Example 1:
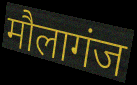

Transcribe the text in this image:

मौलागंज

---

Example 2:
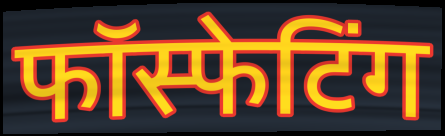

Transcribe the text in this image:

फॉस्फेटिंग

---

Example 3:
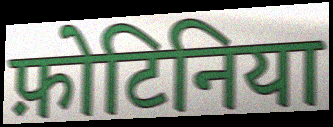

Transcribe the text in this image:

फ़ोटिनिया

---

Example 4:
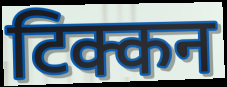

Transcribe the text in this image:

टिक्कन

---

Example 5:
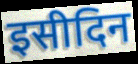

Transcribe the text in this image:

इसीदिन